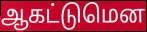
ஆகட்டுமென